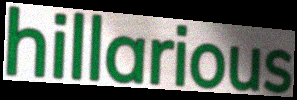
hillarious